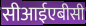
सीआईएबीसी